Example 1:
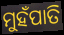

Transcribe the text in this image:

ମୁହଁପାତି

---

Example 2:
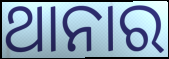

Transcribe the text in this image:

ଥାନାର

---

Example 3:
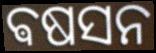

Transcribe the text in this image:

ଵଷସନ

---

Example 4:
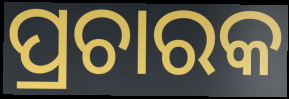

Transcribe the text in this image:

ପ୍ରଚାରକ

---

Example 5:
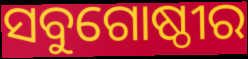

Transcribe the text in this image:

ସବୁଗୋଷ୍ଠୀର